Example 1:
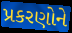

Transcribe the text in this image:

પ્રકરણોને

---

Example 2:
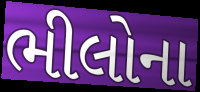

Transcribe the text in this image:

ભીલોના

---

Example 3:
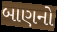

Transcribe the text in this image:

બાણનો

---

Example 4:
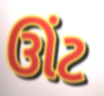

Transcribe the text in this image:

ઊંટ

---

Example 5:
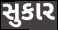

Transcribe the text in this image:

સુકાર